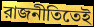
রাজনীতিতেই